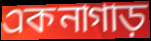
একনাগাড়